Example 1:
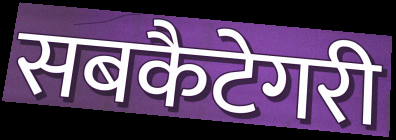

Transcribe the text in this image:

सबकैटेगरी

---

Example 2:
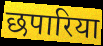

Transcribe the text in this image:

छपारिया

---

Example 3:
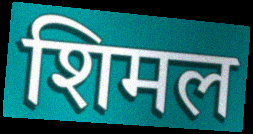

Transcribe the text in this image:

शिमल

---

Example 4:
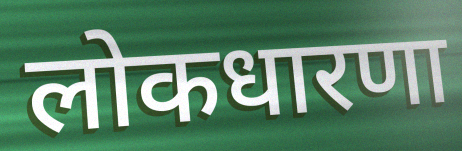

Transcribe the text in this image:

लोकधारणा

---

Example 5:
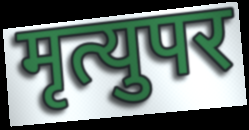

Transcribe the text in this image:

मृत्युपर